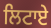
ਲਿਟਾਏ